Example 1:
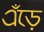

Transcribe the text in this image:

এঁড়ে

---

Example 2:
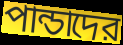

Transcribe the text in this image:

পান্ডাদের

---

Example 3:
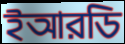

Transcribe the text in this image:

ইআরডি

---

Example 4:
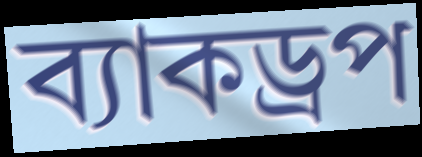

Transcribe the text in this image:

ব্যাকড্রপ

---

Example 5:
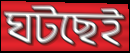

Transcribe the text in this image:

ঘটছেই